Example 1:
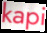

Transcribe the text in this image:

kapi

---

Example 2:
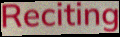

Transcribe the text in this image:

Reciting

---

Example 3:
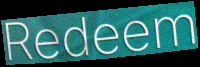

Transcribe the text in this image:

Redeem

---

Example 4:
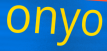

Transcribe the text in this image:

onyo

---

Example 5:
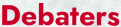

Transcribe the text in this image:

Debaters